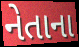
નેતાના